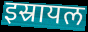
इस्रायल